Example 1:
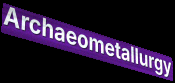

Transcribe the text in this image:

Archaeometallurgy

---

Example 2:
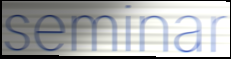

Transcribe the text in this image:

seminar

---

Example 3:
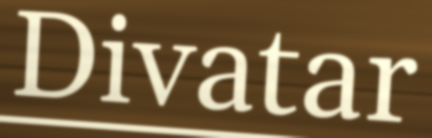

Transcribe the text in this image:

Divatar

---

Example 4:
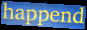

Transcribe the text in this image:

happend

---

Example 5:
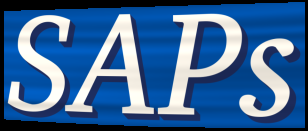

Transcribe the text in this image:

SAPs